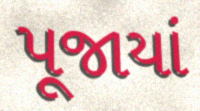
પૂજાયાં